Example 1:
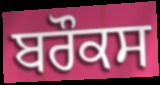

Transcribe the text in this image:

ਬਰੌਕਸ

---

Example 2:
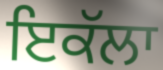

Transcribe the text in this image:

ਇਕੱਲਾ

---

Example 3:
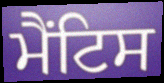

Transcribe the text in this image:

ਮੈਂਟਿਸ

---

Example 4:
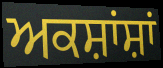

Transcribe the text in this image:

ਅਕਸ਼ਾਂਸ਼ਾਂ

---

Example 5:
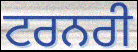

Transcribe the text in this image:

ਟਰਨਰੀ